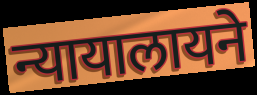
न्यायालायने